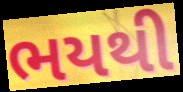
ભયથી